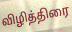
விழித்திரை